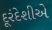
દૂરંદેશીએ